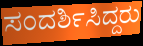
ಸಂದರ್ಶಿಸಿದ್ದರು